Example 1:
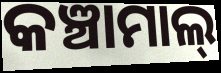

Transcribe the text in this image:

କଞ୍ଚାମାଲ୍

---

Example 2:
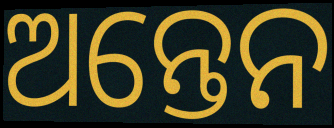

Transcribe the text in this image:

ଅନ୍ତେନ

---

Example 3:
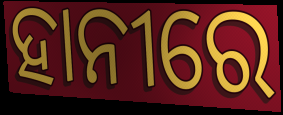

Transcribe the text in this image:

ହାନୀରେ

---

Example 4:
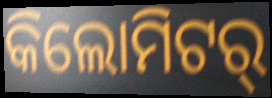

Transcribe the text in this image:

କିଲୋମିଟର୍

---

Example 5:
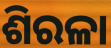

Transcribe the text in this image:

ଶିରଳା